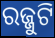
ରଜ୍ଜୁଟି